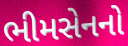
ભીમસેનનો